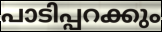
പാടിപ്പറക്കും